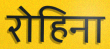
रोहिना